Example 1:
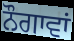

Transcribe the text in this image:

ਨੌਗਾਵਾਂ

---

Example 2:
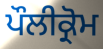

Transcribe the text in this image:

ਪੌਲੀਕ੍ਰੋਮ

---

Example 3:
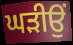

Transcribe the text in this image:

ਘੜੀਉਂ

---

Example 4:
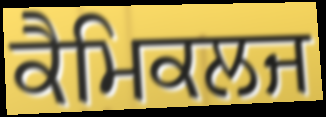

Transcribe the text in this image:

ਕੈਮਿਕਲਜ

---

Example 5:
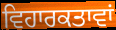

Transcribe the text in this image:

ਵਿਹਾਰਕਤਾਵਾਂ